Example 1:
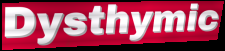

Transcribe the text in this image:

Dysthymic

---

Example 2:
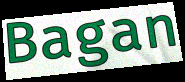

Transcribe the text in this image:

Bagan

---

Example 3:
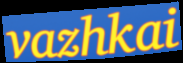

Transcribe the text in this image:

vazhkai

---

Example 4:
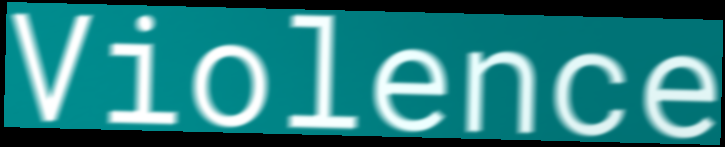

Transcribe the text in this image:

Violence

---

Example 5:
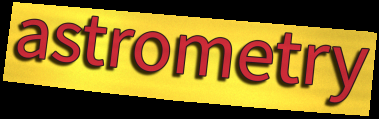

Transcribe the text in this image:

astrometry